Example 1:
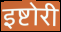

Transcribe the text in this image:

इष्टोरी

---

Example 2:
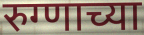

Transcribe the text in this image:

रुग्णाच्या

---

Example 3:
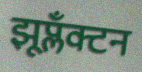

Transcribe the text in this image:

झूप्लँक्टन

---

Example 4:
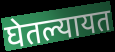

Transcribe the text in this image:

घेतल्यायत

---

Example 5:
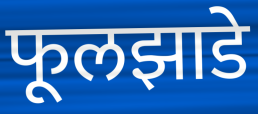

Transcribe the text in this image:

फूलझाडे